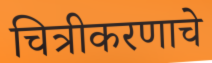
चित्रीकरणाचे